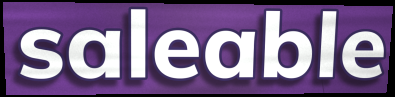
saleable